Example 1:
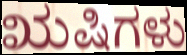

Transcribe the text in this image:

ಋಷಿಗಳು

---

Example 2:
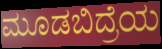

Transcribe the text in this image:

ಮೂಡಬಿದ್ರೆಯ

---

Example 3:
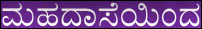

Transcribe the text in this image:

ಮಹದಾಸೆಯಿಂದ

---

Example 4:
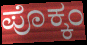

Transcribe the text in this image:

ಪೊಕ್ಕಂ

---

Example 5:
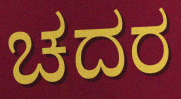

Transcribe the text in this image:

ಚದರ